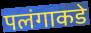
पलंगाकडे